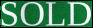
SOLD